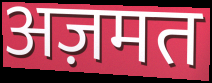
अज़मत